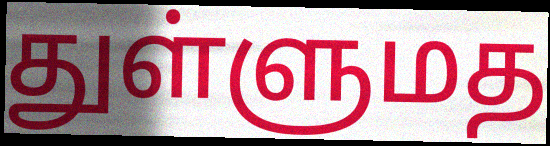
துள்ளுமத